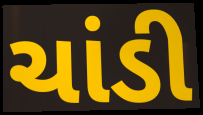
ચાંડી